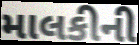
માલકીની